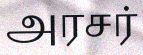
அரசர்